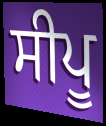
ਸੀਪੂ